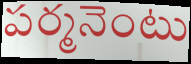
పర్మనెంటు